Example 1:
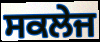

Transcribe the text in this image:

ਸਕਲੇਜ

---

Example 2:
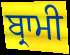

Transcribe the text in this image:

ਬ੍ਰਾਮੀ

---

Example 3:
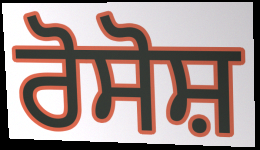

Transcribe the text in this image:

ਰੋਸੋਸ਼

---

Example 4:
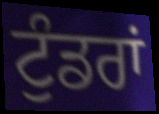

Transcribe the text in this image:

ਟੁੰਡਰਾਂ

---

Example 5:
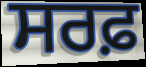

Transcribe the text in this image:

ਸਰਫ਼